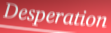
Desperation